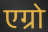
एग्रो